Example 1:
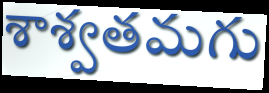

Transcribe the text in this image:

శాశ్వతమగు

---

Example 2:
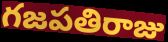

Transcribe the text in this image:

గజపతిరాజు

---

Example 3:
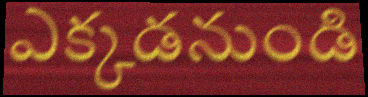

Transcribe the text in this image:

ఎక్కడనుండి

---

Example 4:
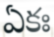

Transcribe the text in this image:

ఏకః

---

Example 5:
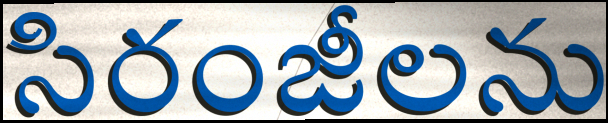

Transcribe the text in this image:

సిరంజీలను